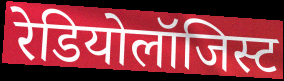
रेडियोलॉजिस्ट